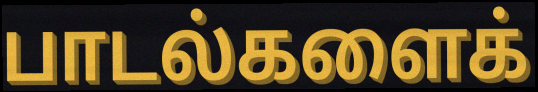
பாடல்களைக்